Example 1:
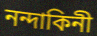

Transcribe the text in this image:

নন্দাকিনী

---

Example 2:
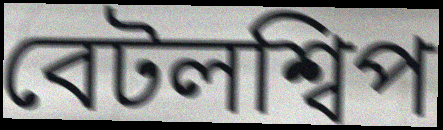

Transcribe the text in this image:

বেটলশ্বিপ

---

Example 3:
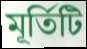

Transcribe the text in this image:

মূৰ্তিটি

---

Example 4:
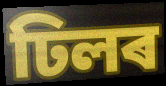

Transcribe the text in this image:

ঢিলৰ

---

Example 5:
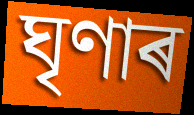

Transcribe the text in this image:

ঘৃণাৰ